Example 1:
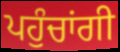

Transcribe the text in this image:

ਪਹੁੰਚਾਂਗੀ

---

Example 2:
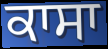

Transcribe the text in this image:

ਕਾਸਾ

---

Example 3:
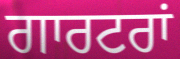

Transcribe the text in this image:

ਗਾਰਟਰਾਂ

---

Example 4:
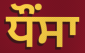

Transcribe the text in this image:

ਧੌਂਸਾ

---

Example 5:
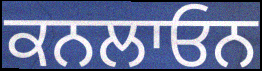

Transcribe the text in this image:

ਕਨਲਾਓਨ